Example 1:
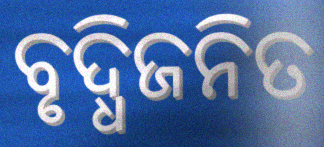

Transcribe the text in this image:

ବୃଦ୍ଧିଜନିତ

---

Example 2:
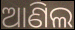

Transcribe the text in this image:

ଆଣିଲ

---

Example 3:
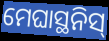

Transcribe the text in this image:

ମେଘାସ୍ଥନିସ୍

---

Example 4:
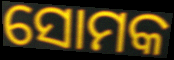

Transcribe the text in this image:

ସୋମକ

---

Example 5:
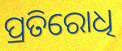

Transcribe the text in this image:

ପ୍ରତିରୋଧି